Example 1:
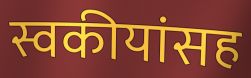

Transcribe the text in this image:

स्वकीयांसह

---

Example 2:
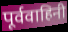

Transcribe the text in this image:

पूर्ववाहिनी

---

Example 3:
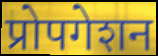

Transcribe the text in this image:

प्रोपगेशन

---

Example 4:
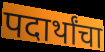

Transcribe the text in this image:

पदार्थांचा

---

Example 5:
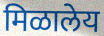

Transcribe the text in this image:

मिळालेय